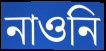
নাওনি